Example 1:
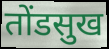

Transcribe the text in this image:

तोंडसुख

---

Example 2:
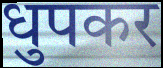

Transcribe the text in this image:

धुपकर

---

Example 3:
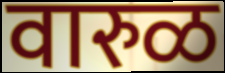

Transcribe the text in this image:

वारुळ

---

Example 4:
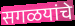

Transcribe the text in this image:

सगळयांचे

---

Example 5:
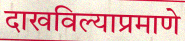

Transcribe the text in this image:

दाखविल्याप्रमाणे